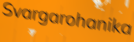
Svargarohanika